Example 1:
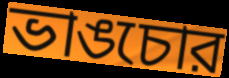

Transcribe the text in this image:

ভাঙচোর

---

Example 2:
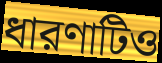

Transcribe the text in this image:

ধারণাটিও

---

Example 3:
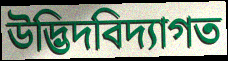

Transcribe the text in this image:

উদ্ভিদবিদ্যাগত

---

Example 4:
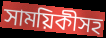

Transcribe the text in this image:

সাময়িকীসহ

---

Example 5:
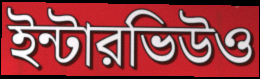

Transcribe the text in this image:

ইন্টারভিউও